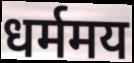
धर्ममय